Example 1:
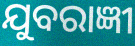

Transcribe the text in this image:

ଯୁବରାଜ୍ଞୀ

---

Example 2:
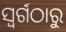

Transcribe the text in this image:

ସ୍ଵର୍ଗଠାରୁ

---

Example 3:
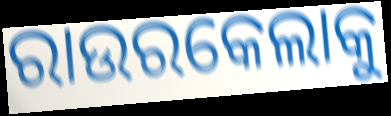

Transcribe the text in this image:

ରାଉରକେଲାକୁ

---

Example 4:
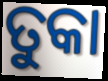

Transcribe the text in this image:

ତୁକା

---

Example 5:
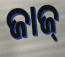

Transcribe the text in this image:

ଜାଜ୍